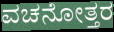
ವಚನೋತ್ತರ